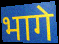
भागे